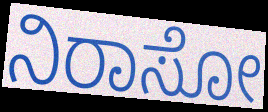
ನಿರಾಸೋ